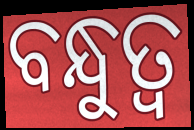
ବନ୍ଧୁତ୍ୱ